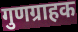
गुणग्राहक